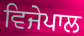
ਵਿਜੇਪਾਲ